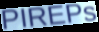
PIREPs